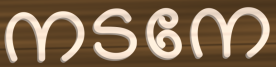
നടനേ